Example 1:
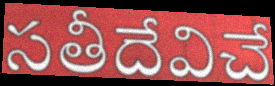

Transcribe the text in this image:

సతీదేవిచే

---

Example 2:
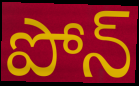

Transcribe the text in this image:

పోన్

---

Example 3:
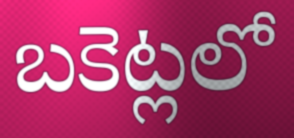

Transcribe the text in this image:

బకెట్లలో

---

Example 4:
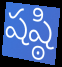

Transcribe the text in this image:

షష్ఠి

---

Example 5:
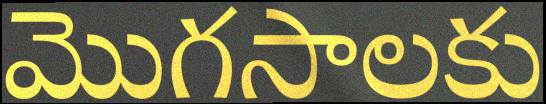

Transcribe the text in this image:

మొగసాలకు